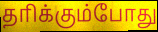
தரிக்கும்போது